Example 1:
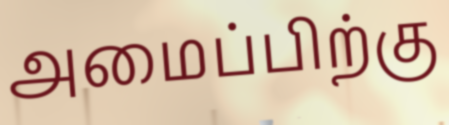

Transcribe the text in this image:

அமைப்பிற்கு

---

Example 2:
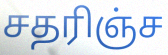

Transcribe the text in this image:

சதரிஞ்ச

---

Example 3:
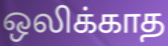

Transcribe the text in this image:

ஒலிக்காத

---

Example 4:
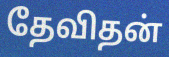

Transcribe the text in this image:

தேவிதன்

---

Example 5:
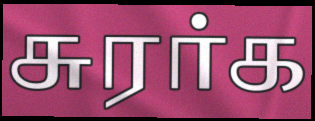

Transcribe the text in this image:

சுரர்க